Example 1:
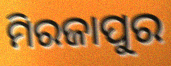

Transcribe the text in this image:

ମିରଜାପୁର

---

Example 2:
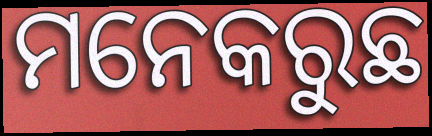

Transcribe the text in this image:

ମନେକରୁଛ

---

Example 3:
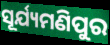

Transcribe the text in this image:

ସୂର୍ଯ୍ୟମଣିପୁର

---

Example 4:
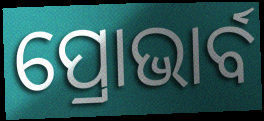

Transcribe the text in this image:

ପ୍ରୋଭାର୍ବ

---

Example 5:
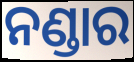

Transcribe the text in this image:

ନଣ୍ଡାର